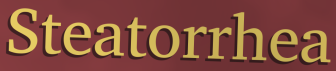
Steatorrhea